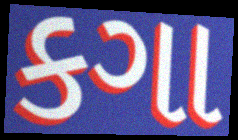
કગા